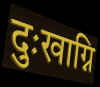
दुःखाग्नि